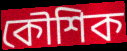
কৌশিক